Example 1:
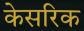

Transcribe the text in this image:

केसरिक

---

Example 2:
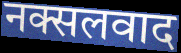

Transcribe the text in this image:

नक्सलवाद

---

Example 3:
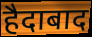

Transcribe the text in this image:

हैदाबाद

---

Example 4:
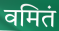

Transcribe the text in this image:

वमितं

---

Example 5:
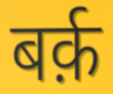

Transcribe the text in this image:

बर्क़